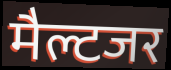
मैल्टजर